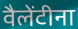
वैलेंटीना